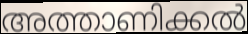
അത്താണിക്കൽ